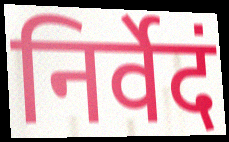
निर्वेदं